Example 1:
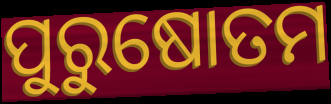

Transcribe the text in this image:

ପୁରୁଷୋତମ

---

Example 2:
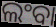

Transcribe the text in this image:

ଲଂବା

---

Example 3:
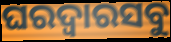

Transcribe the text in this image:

ଘରଦ୍ୱାରସବୁ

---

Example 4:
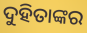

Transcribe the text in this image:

ଦୁହିତାଙ୍କର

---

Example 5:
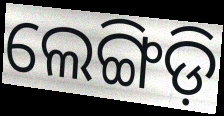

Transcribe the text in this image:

ଲେଙ୍ଗିଡ଼ି